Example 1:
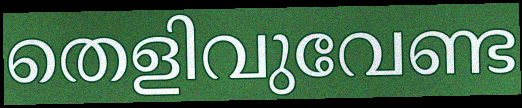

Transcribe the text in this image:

തെളിവുവേണ്ട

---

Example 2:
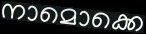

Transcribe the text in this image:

നാമൊക്കെ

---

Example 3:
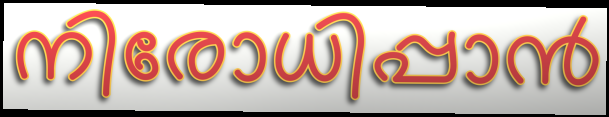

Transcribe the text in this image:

നിരോധിപ്പാൻ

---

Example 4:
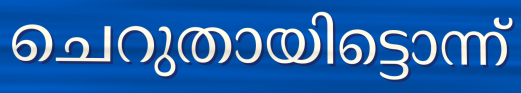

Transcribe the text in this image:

ചെറുതായിട്ടൊന്ന്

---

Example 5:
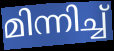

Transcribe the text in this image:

മിന്നിച്ച്